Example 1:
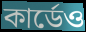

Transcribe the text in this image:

কার্ডেও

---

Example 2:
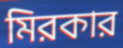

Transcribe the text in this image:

মিরকার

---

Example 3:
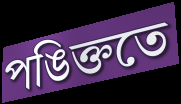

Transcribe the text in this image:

পঙিক্ততে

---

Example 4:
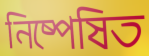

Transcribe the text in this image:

নিষ্পেষিত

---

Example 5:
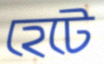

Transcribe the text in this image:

হেটে